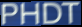
PHDT